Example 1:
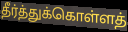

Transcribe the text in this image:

தீர்த்துக்கொள்ளத்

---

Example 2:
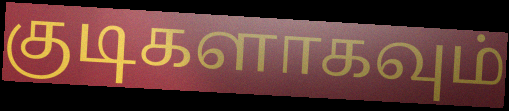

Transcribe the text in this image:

குடிகளாகவும்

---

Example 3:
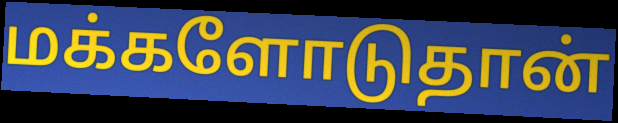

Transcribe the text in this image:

மக்களோடுதான்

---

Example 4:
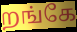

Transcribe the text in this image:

றங்கே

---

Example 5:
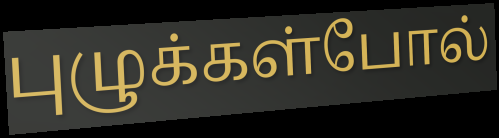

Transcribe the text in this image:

புழுக்கள்போல்